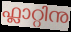
ഫ്ലാറ്റിനു